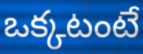
ఒక్కటంటే